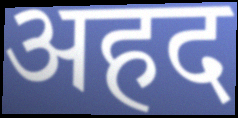
अहद